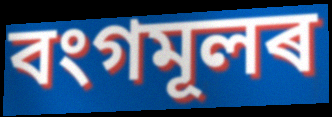
বংগমূলৰ